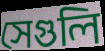
সেগুলি